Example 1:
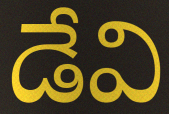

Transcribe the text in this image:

డేవి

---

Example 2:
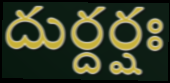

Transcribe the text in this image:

దుర్దర్షః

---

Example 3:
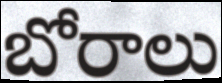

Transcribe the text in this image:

బోరాలు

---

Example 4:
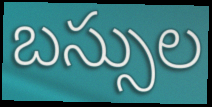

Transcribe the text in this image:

బస్సుల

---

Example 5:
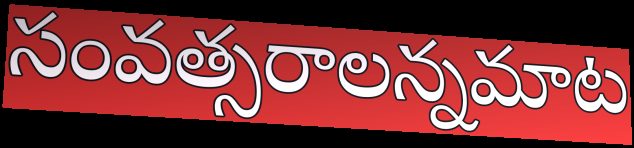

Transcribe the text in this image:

సంవత్సరాలన్నమాట